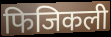
फिजिकली